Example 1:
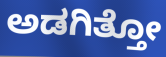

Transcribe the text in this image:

ಅಡಗಿತ್ತೋ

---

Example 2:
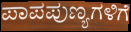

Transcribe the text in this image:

ಪಾಪಪುಣ್ಯಗಳಿಗೆ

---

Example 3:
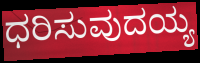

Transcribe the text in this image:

ಧರಿಸುವುದಯ್ಯ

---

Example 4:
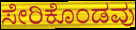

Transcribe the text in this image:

ಸೇರಿಕೊಂಡವು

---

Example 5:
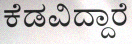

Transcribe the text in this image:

ಕೆಡವಿದ್ದಾರೆ